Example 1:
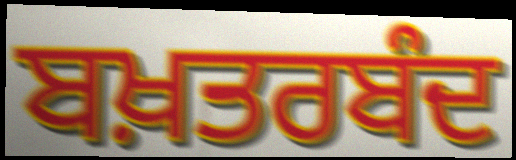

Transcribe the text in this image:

ਬਖ਼ਤਰਬੰਦ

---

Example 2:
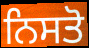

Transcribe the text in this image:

ਨਿਸਤੋ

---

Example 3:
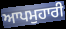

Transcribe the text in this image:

ਆਪਮੁਹਾਰੀ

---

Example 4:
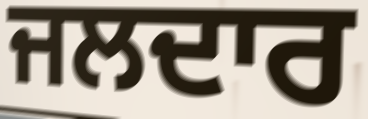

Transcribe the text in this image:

ਜਲਦਾਰ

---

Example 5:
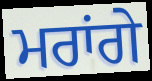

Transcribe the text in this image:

ਮਰਾਂਗੇ